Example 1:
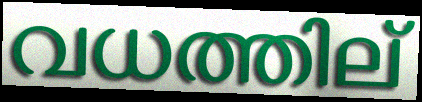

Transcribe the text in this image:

വധത്തില്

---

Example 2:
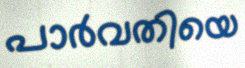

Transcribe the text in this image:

പാർവതിയെ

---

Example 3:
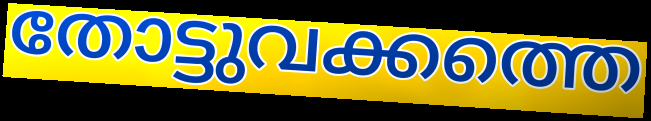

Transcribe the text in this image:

തോട്ടുവക്കത്തെ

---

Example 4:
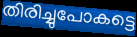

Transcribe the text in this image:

തിരിച്ചുപോകട്ടെ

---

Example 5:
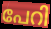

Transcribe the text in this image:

പേറി